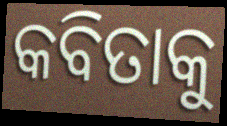
କବିତାକୁ